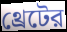
থ্রেটের